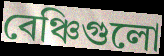
বেঞ্চিগুলো